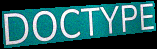
DOCTYPE